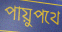
পায়ুপথে